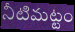
నీటిమట్టం